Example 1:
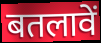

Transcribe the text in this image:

बतलावें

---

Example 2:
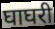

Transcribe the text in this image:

घाघरी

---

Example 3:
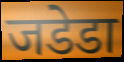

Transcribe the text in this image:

जडेडा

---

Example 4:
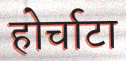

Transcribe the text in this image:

होर्चाटा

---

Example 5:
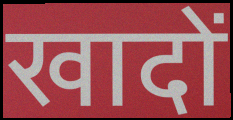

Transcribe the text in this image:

खादों